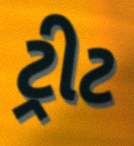
ટ્રીટ